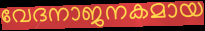
വേദനാജനകമായ